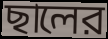
ছালের